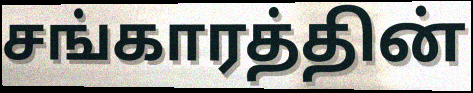
சங்காரத்தின்